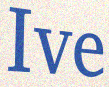
Ive